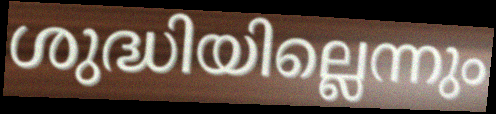
ശുദ്ധിയില്ലെന്നും